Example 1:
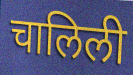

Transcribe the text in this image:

चालिली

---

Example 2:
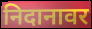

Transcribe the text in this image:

निदानावर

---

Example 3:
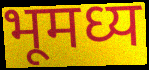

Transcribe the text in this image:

भूमध्य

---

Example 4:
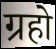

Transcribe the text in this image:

ग्रहो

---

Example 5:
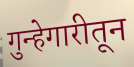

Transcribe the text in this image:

गुन्हेगारीतून